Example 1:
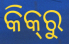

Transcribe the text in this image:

କିକ୍‍ରୁ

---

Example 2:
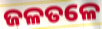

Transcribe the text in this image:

ଜଳତଳେ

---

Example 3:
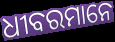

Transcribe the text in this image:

ଧୀବରମାନେ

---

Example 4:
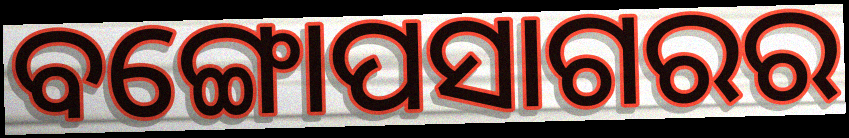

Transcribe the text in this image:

ବଙ୍ଗୋପସାଗରର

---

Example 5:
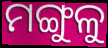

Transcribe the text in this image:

ମଙ୍ଗୁଳୁ